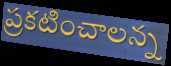
ప్రకటించాలన్న